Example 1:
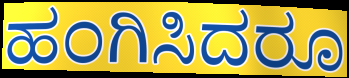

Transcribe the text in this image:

ಹಂಗಿಸಿದರೂ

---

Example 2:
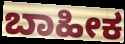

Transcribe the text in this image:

ಬಾಹೀಕ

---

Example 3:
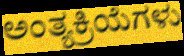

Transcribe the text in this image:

ಅಂತ್ಯಕ್ರಿಯೆಗಳು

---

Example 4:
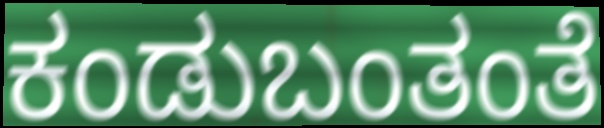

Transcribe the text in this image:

ಕಂಡುಬಂತಂತೆ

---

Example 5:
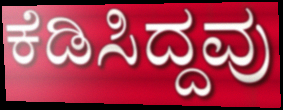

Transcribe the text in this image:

ಕೆಡಿಸಿದ್ದವು